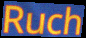
Ruch